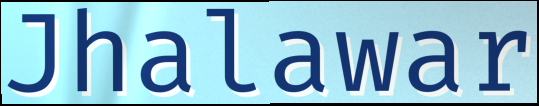
Jhalawar